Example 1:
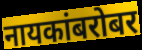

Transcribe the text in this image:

नायकांबरोबर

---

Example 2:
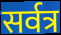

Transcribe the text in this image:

सर्वत्र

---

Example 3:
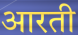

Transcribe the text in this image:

आरती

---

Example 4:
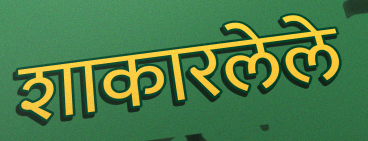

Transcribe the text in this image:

शाकारलेले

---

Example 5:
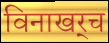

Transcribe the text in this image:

विनाखर्च